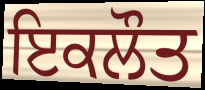
ਇਕਲੌਤ